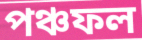
পঞ্চফল